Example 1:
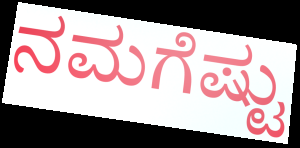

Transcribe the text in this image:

ನಮಗೆಷ್ಟು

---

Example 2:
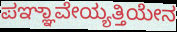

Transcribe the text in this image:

ಪಞ್ಞಾವೇಯ್ಯತ್ತಿಯೇನ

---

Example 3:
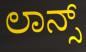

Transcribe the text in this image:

ಲಾನ್ಸ್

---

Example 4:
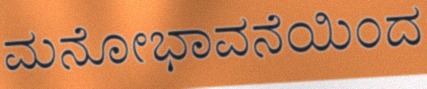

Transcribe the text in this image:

ಮನೋಭಾವನೆಯಿಂದ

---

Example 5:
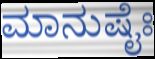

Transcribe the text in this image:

ಮಾನುಷೈಃ